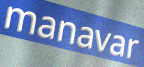
manavar